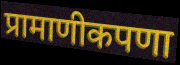
प्रामाणीकपणा